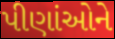
પીણાંઓને